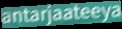
antarjaateeya